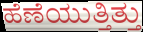
ಹೆಣೆಯುತ್ತಿತ್ತು